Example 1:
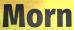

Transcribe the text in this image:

Morn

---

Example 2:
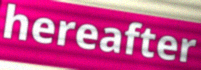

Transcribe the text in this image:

hereafter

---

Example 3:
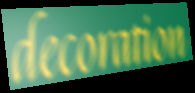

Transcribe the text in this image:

decoration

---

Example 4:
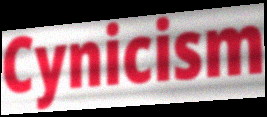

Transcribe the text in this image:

Cynicism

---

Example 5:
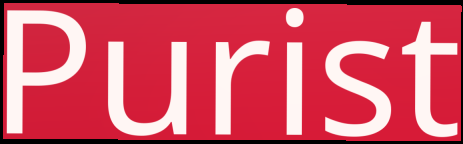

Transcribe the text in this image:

Purist